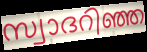
സ്വാദറിഞ്ഞ